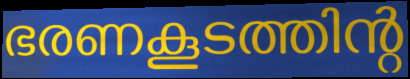
ഭരണകൂടത്തിന്റ